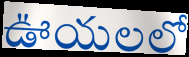
ఊయలలో